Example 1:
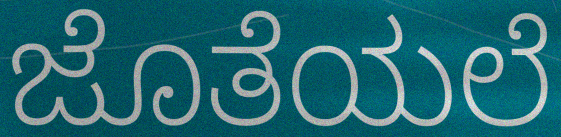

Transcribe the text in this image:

ಜೊತೆಯಲೆ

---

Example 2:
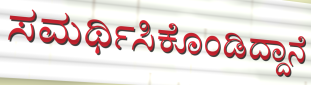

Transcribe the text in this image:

ಸಮರ್ಥಿಸಿಕೊಂಡಿದ್ದಾನೆ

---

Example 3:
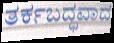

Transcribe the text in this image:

ತರ್ಕಬದ್ಧವಾದ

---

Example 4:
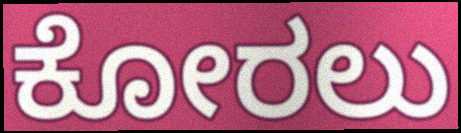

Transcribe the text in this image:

ಕೋರಲು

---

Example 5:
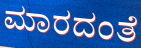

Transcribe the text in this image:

ಮಾರದಂತೆ